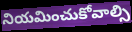
నియమించుకోవాల్సి